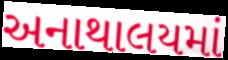
અનાથાલયમાં